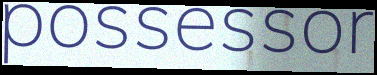
possessor